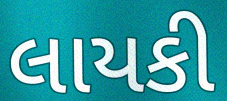
લાયકી